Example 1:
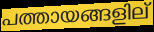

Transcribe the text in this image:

പത്തായങ്ങളില്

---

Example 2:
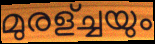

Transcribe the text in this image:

മുരള്ച്ചയും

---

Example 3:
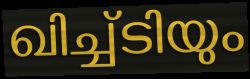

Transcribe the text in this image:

ഖിച്ച്ടിയും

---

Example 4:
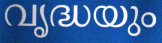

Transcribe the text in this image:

വൃദ്ധയും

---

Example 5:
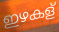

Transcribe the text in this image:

ഇഴകള്